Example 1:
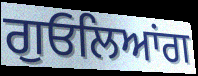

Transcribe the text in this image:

ਗੁਓਲਿਆਂਗ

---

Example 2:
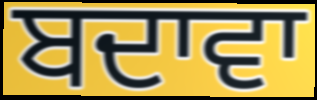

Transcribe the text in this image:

ਬਦਾਵਾ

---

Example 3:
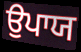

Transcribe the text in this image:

ਉਪਾਯ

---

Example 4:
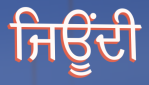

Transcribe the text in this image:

ਜਿਊਂਦੀ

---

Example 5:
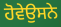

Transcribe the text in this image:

ਹੋਵੇਉਸਨੇ